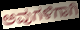
ಅವುಗಳಿಗಾಗಿ